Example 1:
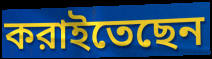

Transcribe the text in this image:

করাইতেছেন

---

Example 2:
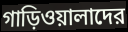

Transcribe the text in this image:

গাড়িওয়ালাদের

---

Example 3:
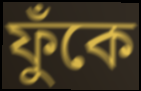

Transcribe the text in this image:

ফুঁকে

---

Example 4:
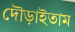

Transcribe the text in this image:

দৌড়াইতাম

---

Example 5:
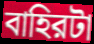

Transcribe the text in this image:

বাহিরটা